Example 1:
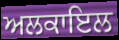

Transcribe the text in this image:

ਅਲਕਾਇਲ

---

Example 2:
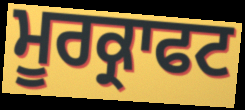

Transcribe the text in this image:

ਮੂਰਕ੍ਰਾਫਟ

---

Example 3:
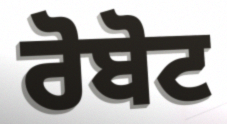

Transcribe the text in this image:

ਰੋਬੋਟ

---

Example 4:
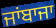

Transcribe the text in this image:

ਜਾਂਬਾਜਾ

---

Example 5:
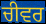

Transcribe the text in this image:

ਚੀਵਰ